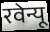
रवेन्यू